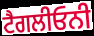
ਟੈਗਲੀਓਨੀ